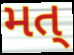
મત્